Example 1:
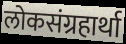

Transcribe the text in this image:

लोकसंग्रहार्था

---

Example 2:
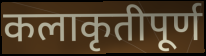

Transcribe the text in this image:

कलाकृतीपूर्ण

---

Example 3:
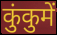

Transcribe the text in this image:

कुंकुमें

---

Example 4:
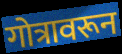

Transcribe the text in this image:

गोत्रावरून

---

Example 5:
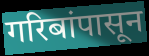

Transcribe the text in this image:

गरिबांपासून